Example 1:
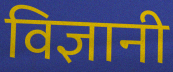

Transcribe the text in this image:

विज्ञानी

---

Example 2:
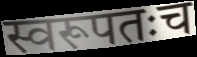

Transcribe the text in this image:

स्वरूपतःच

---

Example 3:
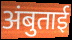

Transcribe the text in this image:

अंबुताई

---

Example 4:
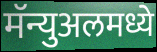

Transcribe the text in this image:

मॅन्युअलमध्ये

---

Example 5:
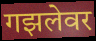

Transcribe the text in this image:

गझलेवर